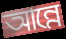
আন্নে